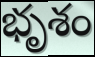
భృశం